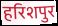
हरिशपुर